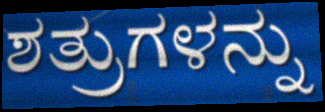
ಶತ್ರುಗಳನ್ನು